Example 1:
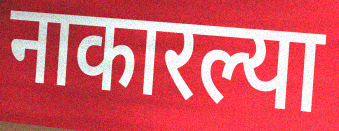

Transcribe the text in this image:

नाकारल्या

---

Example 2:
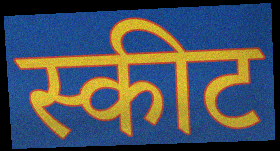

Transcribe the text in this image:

स्कीट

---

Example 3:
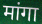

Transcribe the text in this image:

मांगा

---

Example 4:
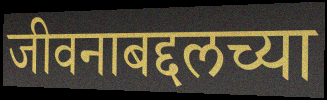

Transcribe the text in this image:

जीवनाबद्दलच्या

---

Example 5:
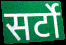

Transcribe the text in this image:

सर्टो